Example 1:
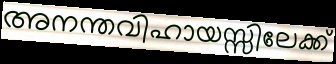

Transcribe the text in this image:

അനന്തവിഹായസ്സിലേക്ക്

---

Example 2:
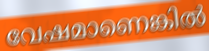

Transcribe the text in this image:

വേഷമാണെങ്കിൽ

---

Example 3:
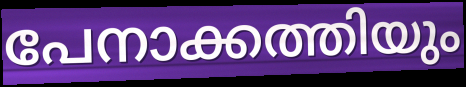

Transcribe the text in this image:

പേനാക്കത്തിയും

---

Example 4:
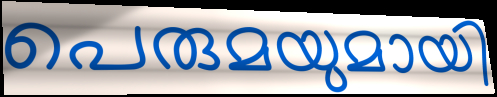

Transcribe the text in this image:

പെരുമയുമായി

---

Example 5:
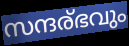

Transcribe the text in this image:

സന്ദര്ഭവും